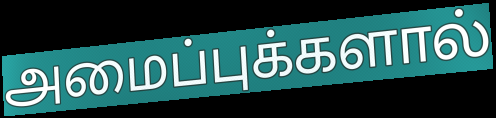
அமைப்புக்களால்